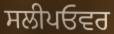
ਸਲੀਪਓਵਰ